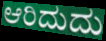
ಆರಿದುದು